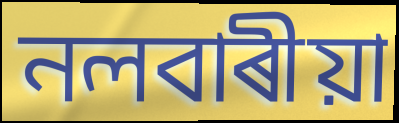
নলবাৰীয়া